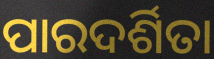
ପାରଦର୍ଶିତା